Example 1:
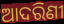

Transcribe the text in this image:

ଆଦରିଣୀ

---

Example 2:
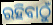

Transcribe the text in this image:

ରହିବାଠୁଁ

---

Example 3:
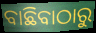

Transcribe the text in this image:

ବାଛିବାଠାରୁ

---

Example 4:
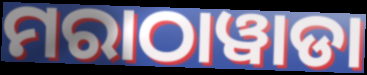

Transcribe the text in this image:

ମରାଠାୱାଡା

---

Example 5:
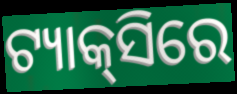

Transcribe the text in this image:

ଟ୍ୟାକ୍‍ସିରେ